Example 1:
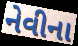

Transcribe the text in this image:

નેવીના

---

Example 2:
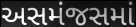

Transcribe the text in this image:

અસમંજસમાં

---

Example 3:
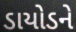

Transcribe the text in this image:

ડાયોડને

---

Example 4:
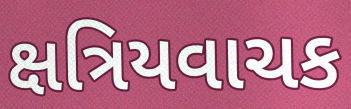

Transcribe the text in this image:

ક્ષત્રિયવાચક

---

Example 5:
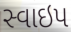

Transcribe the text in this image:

સ્વાઇપ